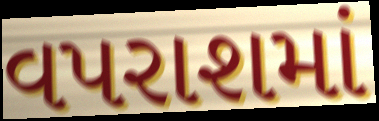
વપરાશમાં